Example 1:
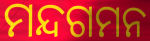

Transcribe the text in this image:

ମନ୍ଦଗମନ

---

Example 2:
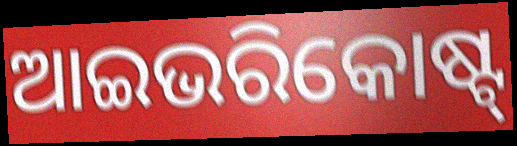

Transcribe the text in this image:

ଆଇଭରିକୋଷ୍ଟ୍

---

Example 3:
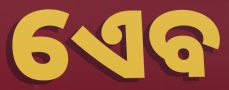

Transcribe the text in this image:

ଏେବ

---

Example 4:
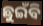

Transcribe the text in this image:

ଛୁଇଁବି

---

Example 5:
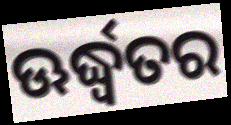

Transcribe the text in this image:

ଊର୍ଦ୍ଧ୍ଵତର